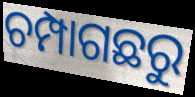
ଚମ୍ପାଗଛରୁ